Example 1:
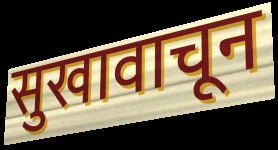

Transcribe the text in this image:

सुखावाचून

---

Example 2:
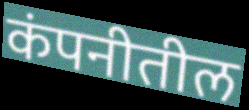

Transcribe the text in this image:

कंपनीतील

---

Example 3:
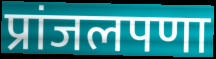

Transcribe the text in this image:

प्रांजलपणा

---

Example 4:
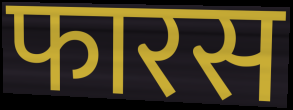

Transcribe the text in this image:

फारस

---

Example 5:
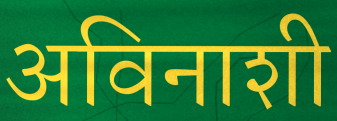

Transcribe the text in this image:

अविनाशी